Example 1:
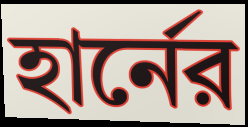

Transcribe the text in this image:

হার্নের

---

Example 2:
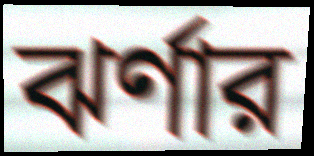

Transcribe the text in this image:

ঝর্ণার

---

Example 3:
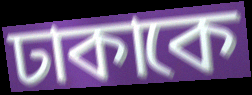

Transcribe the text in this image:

ঢাকাকে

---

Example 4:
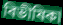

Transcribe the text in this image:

বিভীষিকা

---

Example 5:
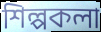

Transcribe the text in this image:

শিল্পকলা